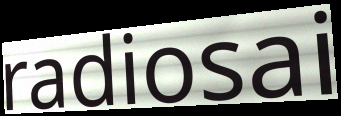
radiosai